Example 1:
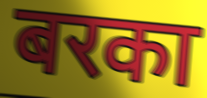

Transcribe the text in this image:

बरका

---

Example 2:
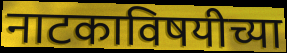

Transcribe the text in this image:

नाटकाविषयीच्या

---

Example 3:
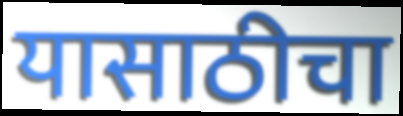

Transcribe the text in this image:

यासाठीचा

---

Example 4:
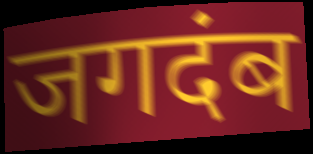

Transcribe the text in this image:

जगदंब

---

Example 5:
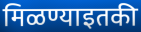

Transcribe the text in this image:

मिळण्याइतकी